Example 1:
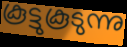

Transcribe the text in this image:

കൂട്ടുകൂടുന്നു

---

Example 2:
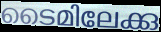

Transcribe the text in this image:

ടൈമിലേക്കു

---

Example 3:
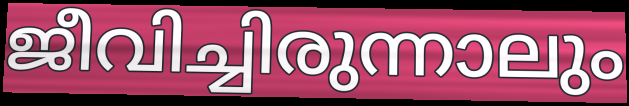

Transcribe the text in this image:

ജീവിച്ചിരുന്നാലും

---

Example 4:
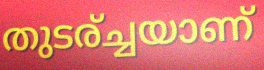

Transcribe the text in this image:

തുടര്ച്ചയാണ്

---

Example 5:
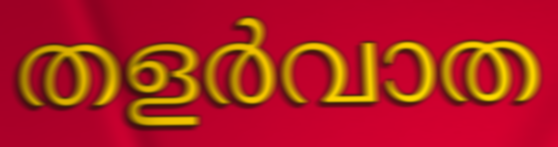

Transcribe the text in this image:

തളർവാത